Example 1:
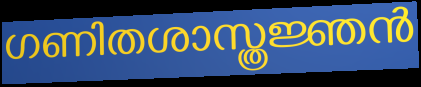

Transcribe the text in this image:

ഗണിതശാസ്ത്രജ്ഞൻ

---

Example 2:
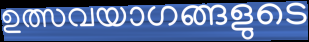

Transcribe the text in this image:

ഉത്സവയാഗങ്ങളുടെ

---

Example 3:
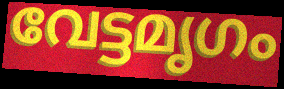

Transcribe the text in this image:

വേട്ടമൃഗം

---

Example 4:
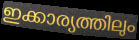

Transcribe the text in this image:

ഇക്കാര്യത്തിലും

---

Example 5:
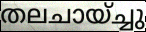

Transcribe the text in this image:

തലചായ്ച്ചു